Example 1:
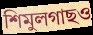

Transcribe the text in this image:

শিমুলগাছও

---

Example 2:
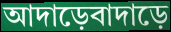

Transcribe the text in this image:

আদাড়েবাদাড়ে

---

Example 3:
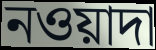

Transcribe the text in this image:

নওয়াদা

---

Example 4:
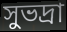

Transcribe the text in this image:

সুভদ্রা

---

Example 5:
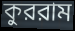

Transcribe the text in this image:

কুররাম